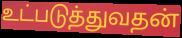
உட்படுத்துவதன்